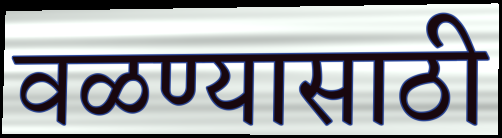
वळण्यासाठी